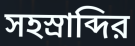
সহস্রাব্দির